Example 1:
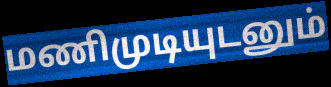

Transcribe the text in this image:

மணிமுடியுடனும்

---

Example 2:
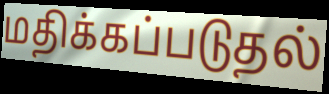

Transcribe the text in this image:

மதிக்கப்படுதல்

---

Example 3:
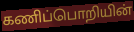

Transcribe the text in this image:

கணிப்பொறியின்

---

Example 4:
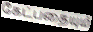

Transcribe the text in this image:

கேட்பதையும்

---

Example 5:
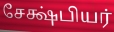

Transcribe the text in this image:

சேக்ஷ்பியர்